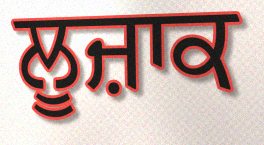
ਲੂਜ਼ਾਕ